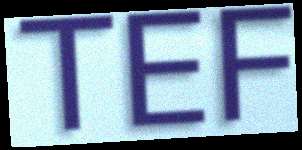
TEF